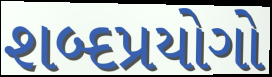
શબ્દપ્રયોગો